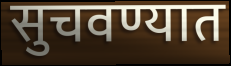
सुचवण्यात